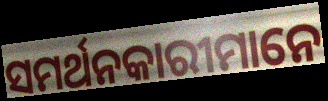
ସମର୍ଥନକାରୀମାନେ